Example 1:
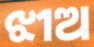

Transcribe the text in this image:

ଝୀଅ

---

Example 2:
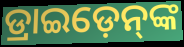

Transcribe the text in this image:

ଡ୍ରାଇଡ଼େନ୍‌ଙ୍କ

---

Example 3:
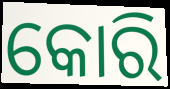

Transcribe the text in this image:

କୋରି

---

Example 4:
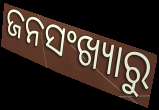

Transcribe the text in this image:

ଜନସଂଖ୍ୟାରୁ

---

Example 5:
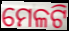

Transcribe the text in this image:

ମେଳଟି